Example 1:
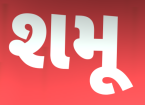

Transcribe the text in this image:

શમૂ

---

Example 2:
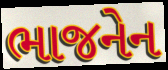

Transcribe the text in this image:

ભાજનેન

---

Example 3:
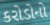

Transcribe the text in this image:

કરોડોનો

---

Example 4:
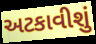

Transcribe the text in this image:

અટકાવીશું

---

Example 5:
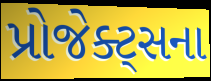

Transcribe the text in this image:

પ્રોજેક્ટ્સના